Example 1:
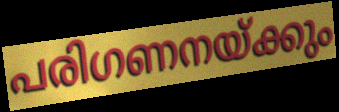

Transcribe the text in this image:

പരിഗണനയ്ക്കും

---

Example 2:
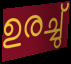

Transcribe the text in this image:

ഉരച്ചു്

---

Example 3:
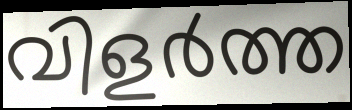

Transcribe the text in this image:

വിളർത്ത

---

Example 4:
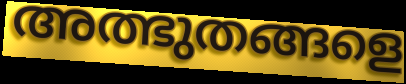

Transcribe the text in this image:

അത്ഭുതങ്ങളെ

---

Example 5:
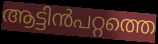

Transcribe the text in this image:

ആട്ടിൻപറ്റത്തെ